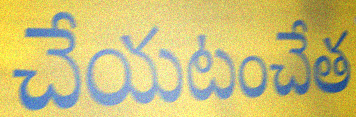
చేయటంచేత